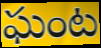
ఘంట